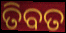
ତିବତ